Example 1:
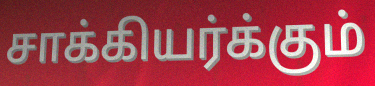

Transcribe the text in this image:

சாக்கியர்க்கும்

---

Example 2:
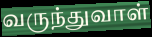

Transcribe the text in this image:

வருந்துவாள்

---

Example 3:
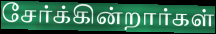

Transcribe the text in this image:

சேர்க்கின்றார்கள்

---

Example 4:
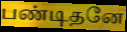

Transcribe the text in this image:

பண்டிதனே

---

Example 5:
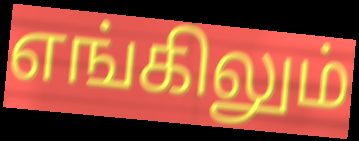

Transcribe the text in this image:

எங்கிலும்